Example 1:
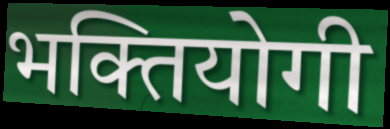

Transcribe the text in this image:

भक्तियोगी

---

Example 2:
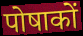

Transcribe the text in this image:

पोषाकों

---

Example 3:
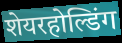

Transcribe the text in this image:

शेयरहोल्डिंग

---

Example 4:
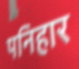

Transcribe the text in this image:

पनिहार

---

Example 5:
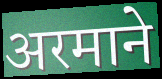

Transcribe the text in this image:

अरमाने